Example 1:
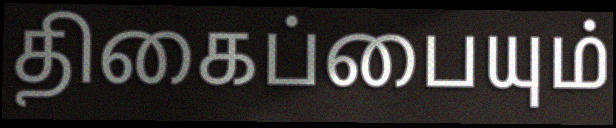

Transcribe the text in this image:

திகைப்பையும்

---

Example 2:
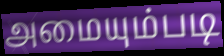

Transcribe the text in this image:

அமையும்படி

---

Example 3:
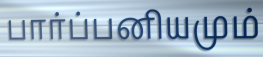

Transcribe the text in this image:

பார்ப்பனியமும்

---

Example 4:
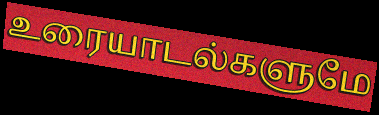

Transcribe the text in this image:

உரையாடல்களுமே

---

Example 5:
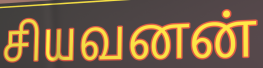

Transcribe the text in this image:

சியவனன்